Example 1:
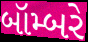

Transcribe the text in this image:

બૉમ્બરે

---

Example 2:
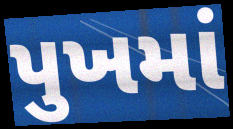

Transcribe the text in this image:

પુખમાં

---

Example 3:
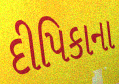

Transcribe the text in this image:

દીપિકાના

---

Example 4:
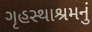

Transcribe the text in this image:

ગૃહસ્થાશ્રમનું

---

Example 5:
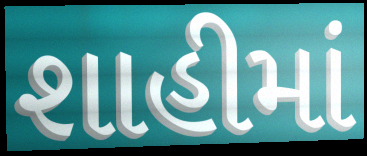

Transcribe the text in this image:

શાહીમાં